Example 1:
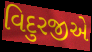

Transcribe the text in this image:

વિદુરજીએ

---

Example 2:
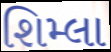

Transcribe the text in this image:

શિમ્લા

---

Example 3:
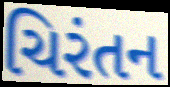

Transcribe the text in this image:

ચિરંતન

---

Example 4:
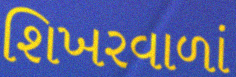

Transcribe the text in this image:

શિખરવાળાં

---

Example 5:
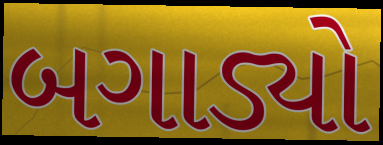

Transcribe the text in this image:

બગાડ્યો